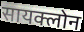
सायक्लोन